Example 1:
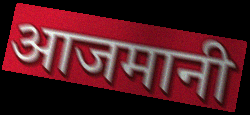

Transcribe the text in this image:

आजमानी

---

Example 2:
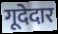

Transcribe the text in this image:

गूदेदार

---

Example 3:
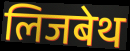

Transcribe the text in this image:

लिजबेथ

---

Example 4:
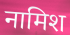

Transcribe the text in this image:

नामिश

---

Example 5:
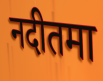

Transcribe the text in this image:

नदीतमा